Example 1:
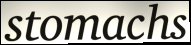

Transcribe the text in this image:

stomachs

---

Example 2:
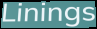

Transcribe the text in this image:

Linings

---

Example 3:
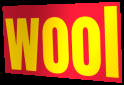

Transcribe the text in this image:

wool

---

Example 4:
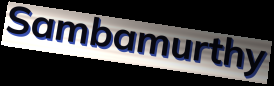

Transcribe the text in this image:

Sambamurthy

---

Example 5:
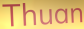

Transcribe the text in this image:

Thuan